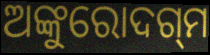
ଅଙ୍କୁରୋଦଗ୍‌ମ